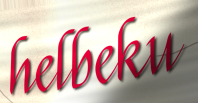
helbeku